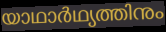
യാഥാർഥ്യത്തിനും